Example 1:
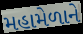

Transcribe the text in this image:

મહામેળાને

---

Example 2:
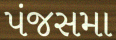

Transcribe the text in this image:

પંજસમા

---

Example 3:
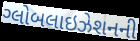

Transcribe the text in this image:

ગ્લોબલાઇઝેશનની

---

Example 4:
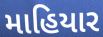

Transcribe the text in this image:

માહિયાર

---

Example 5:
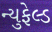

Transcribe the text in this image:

ન્યુફેલ્ડ